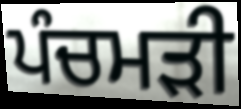
ਪੰਚਮੜੀ